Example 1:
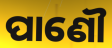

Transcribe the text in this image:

ପାଣୌ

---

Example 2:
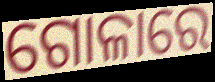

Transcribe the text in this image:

ଗୋଳାରେ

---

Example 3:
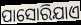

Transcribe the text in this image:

ପାସୋରିଯାଏ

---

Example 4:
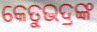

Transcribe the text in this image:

କେତୁଭଦ୍ରଙ୍କ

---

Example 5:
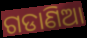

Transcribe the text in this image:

ଗଡାଣିଆ